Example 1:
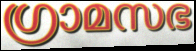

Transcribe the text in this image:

ഗ്രാമസഭ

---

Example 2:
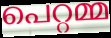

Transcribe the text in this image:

പെറ്റമ്മ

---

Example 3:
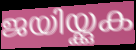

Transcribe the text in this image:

ജയിയ്ക്കുക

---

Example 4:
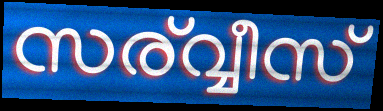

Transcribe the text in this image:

സര്വ്വീസ്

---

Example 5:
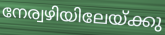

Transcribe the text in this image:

നേര്വഴിയിലേയ്ക്കു